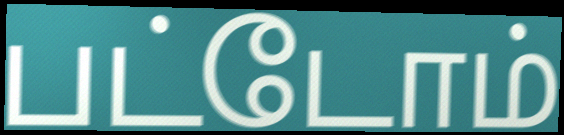
பட்டோம்